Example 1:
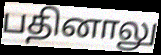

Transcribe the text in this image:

பதினாலு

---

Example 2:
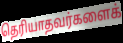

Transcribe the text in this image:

தெரியாதவர்களைக்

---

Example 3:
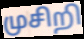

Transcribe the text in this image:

முசிறி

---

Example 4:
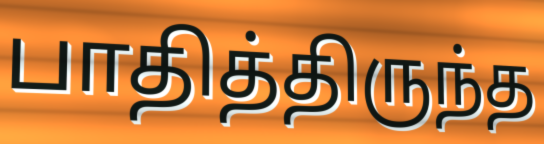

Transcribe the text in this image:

பாதித்திருந்த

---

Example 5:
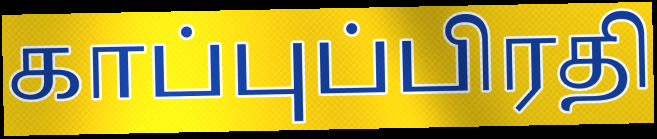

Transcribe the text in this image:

காப்புப்பிரதி